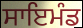
ਸਾਇਮੰਡ